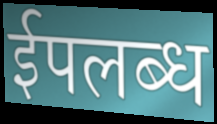
ईपलब्ध